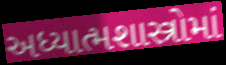
અધ્યાત્મશાસ્ત્રોમાં